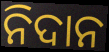
ନିଦାନ